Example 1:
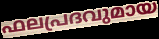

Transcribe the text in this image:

ഫലപ്രദവുമായ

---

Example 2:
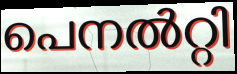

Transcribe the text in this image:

പെനൽറ്റി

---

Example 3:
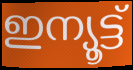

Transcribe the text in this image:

ഇന്യൂട്ട്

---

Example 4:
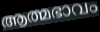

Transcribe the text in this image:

ആത്മഭാവം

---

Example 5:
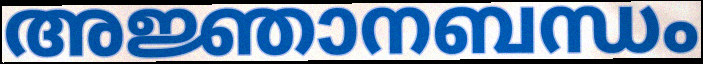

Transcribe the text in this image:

അജ്ഞാനബന്ധം